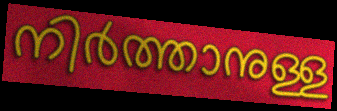
നിർത്താനുള്ള